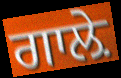
ਗਾਲ਼ੇ